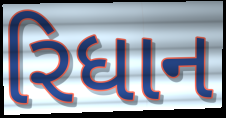
રિધાન